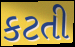
કટતી